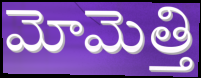
మోమెత్తి